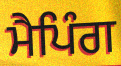
ਮੈਪਿੰਗ